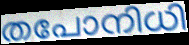
തപോനിധി